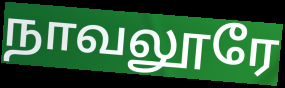
நாவலூரே